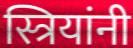
स्त्रियांनी